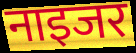
नाइजर